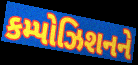
કમ્પોઝિશનને